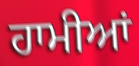
ਹਾਮੀਆਂ